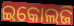
ଇକୋଲଜି